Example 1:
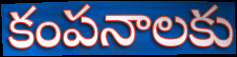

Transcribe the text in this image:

కంపనాలకు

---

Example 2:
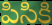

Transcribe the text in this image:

పిసికి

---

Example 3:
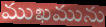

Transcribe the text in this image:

ముఖమును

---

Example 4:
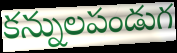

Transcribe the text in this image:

కన్నులపండుగ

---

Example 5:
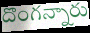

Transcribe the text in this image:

దొంగన్నారు